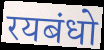
रयबंधो